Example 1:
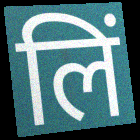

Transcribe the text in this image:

लिं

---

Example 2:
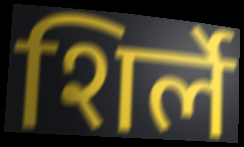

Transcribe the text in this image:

शिर्ले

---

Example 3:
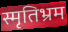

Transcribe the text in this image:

स्मृतिभ्रम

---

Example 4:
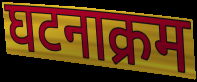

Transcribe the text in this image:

घटनाक्रम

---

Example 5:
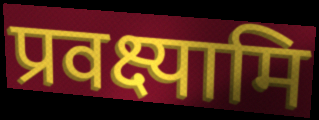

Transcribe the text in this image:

प्रवक्ष्यामि